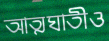
আত্মঘাতীও